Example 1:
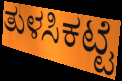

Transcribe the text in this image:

ತುಳಸಿಕಟ್ಟೆ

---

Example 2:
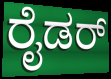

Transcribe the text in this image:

ರೈಡರ್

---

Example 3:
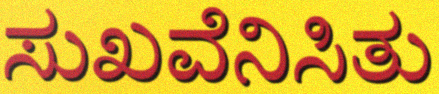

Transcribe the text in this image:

ಸುಖವೆನಿಸಿತು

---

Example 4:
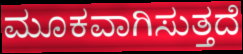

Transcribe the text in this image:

ಮೂಕವಾಗಿಸುತ್ತದೆ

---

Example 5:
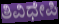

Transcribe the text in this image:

ತಿವಿಧೇಪಿ